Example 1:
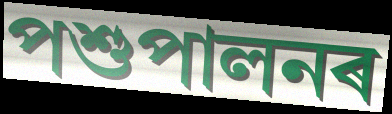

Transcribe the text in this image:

পশুপালনৰ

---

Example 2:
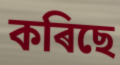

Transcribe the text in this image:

কৰিছে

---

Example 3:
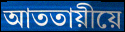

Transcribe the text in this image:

আততায়ীয়ে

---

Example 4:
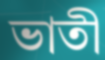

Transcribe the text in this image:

ভাতী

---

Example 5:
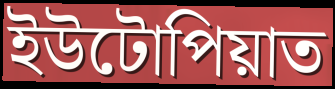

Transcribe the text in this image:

ইউটোপিয়াত